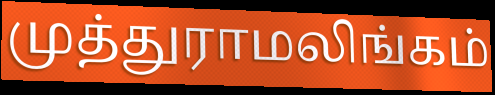
முத்துராமலிங்கம்